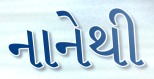
નાનેથી